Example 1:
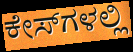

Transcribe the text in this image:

ಕೇಸ್‌ಗಳಲ್ಲಿ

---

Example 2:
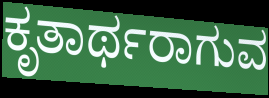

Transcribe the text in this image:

ಕೃತಾರ್ಥರಾಗುವ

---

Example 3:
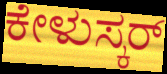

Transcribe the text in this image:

ಕೇಳುಸ್ಕರ್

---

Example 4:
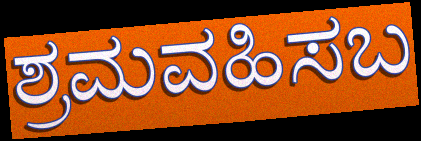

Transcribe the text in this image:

ಶ್ರಮವಹಿಸಬ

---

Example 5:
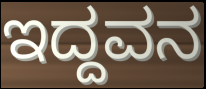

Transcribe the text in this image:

ಇದ್ದವನ